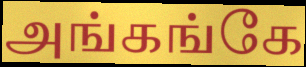
அங்கங்கே